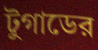
টুগাডের